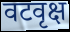
वटवृक्ष